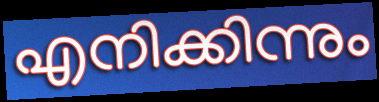
എനിക്കിന്നും